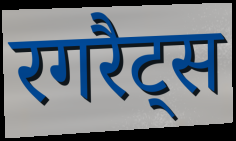
रगरैट्स